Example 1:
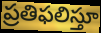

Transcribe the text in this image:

ప్రతిఫలిస్తూ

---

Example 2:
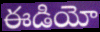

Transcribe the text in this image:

ఈడియో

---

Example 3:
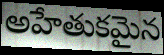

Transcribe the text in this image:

అహేతుకమైన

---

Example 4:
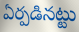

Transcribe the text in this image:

ఏర్పడినట్టు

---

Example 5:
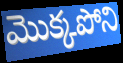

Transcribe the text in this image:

మొక్కపోని